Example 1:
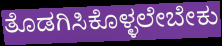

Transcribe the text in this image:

ತೊಡಗಿಸಿಕೊಳ್ಳಲೇಬೇಕು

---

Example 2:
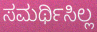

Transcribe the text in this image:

ಸಮರ್ಥಿಸಿಲ್ಲ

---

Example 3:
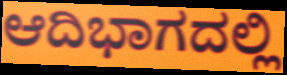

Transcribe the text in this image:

ಆದಿಭಾಗದಲ್ಲಿ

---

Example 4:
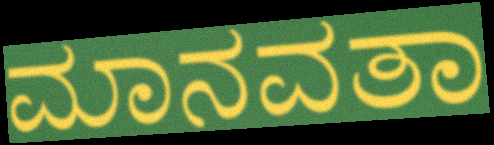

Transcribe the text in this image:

ಮಾನವತಾ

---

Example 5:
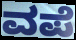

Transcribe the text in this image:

ವಪೆ